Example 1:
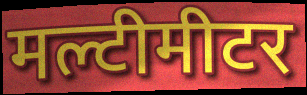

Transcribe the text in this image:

मल्टीमीटर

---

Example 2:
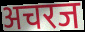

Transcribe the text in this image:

अचरज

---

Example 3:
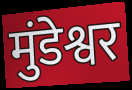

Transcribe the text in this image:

मुंडेश्वर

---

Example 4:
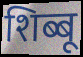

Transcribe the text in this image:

शिब्बू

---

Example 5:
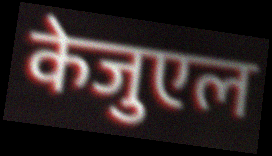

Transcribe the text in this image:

केजुएल